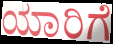
ಯಾರಿಗೆ